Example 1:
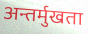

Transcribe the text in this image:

अन्तर्मुखता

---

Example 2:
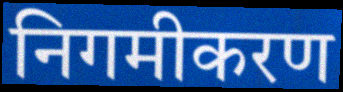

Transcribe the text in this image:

निगमीकरण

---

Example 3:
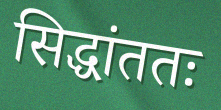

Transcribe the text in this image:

सिद्धांततः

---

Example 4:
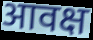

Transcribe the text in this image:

आवक्ष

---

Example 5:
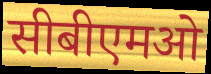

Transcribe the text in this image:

सीबीएमओ